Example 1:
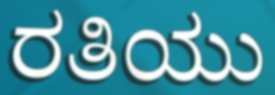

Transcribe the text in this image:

ರತಿಯು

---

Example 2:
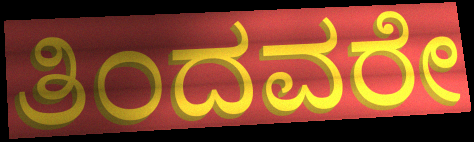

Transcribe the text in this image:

ತಿಂದವರೇ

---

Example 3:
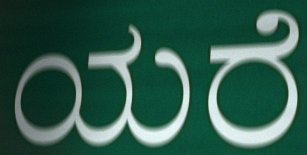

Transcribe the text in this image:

ಯರೆ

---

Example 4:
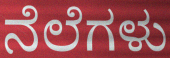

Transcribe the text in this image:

ನೆಲೆಗಳು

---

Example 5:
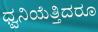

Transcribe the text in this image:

ಧ್ವನಿಯೆತ್ತಿದರೂ